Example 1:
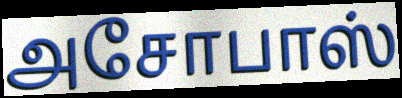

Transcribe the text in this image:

அசோபாஸ்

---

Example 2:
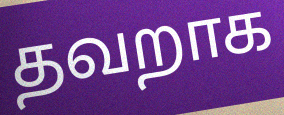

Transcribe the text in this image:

தவறாக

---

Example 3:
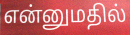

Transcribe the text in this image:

என்னுமதில்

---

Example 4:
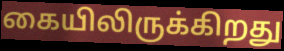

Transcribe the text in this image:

கையிலிருக்கிறது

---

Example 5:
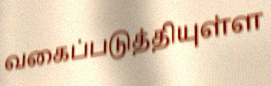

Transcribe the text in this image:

வகைப்படுத்தியுள்ள